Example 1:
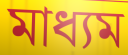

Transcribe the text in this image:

মাধ্যম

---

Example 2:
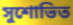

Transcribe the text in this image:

সুশোভিত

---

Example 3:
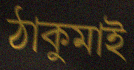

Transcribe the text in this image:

ঠাকুমাই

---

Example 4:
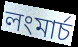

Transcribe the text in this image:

লংমার্চ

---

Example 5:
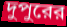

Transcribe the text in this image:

দুপুরের